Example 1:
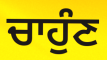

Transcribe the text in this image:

ਚਾਹੁੰਣ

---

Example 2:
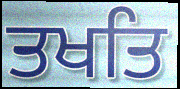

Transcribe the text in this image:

ਤਖਤਿ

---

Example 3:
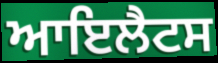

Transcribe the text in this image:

ਆਇਲੈਟਸ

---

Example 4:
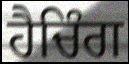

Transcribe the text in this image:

ਹੈਚਿੰਗ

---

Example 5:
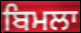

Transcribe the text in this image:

ਬਿਮਲਾ